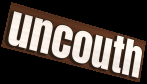
uncouth